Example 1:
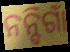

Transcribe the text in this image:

ନନ୍ଦିଗାଁ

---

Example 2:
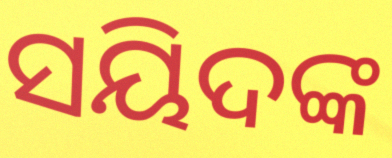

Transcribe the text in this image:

ସୟିଦଙ୍କ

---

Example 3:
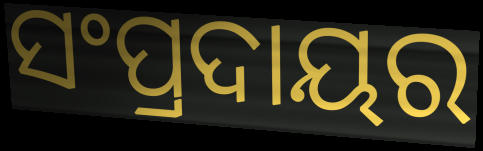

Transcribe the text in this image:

ସଂପ୍ରଦାୟର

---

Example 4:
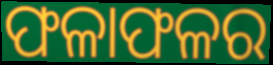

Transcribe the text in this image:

ଫଳାଫଳର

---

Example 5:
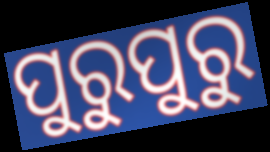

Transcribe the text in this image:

ପୁରୁପୁରୁ